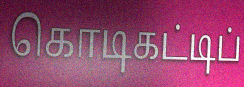
கொடிகட்டிப்